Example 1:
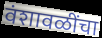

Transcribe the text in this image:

वंशावळींचा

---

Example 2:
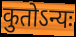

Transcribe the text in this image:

कुतोऽन्यः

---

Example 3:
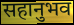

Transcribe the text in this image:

सहानुभव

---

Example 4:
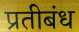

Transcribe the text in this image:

प्रतीबंध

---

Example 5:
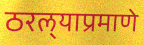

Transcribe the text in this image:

ठरल्याप्रमाणे